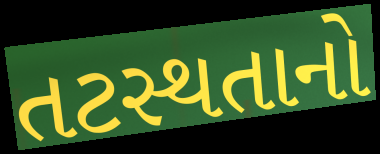
તટસ્થતાનો